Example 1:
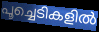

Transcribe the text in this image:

പൂച്ചെടികളിൽ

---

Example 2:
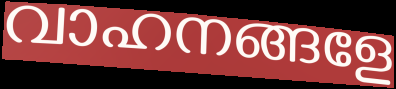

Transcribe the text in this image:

വാഹനങ്ങളേ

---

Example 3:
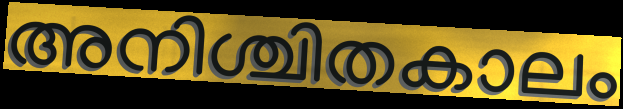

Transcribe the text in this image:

അനിശ്ചിതകാലം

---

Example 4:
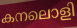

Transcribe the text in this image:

കനലൊളി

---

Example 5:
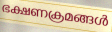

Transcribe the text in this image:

ഭക്ഷണക്രമങ്ങൾ